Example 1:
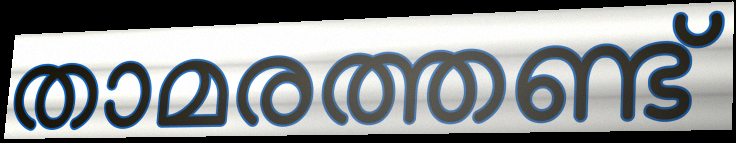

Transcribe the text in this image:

താമരത്തണ്ട്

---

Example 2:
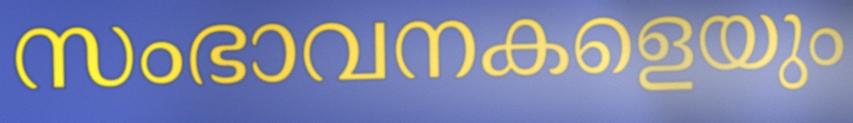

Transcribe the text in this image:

സംഭാവനകളെയും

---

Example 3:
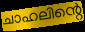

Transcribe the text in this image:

ചാഹലിന്റെ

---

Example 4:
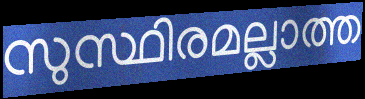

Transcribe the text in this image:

സുസ്ഥിരമല്ലാത്ത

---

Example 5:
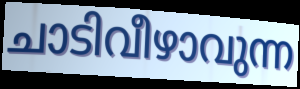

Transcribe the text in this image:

ചാടിവീഴാവുന്ന